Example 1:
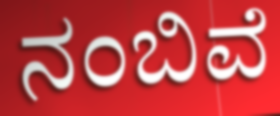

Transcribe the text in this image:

ನಂಬಿವೆ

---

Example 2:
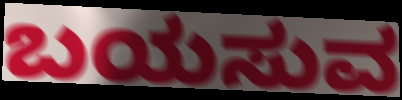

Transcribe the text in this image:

ಬಯಸುವ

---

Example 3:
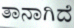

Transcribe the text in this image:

ತಾನಾಗಿದೆ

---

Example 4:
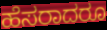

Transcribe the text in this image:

ಹೆಸರಾದರೂ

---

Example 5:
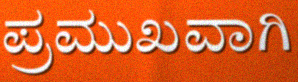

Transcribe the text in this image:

ಪ್ರಮುಖವಾಗಿ